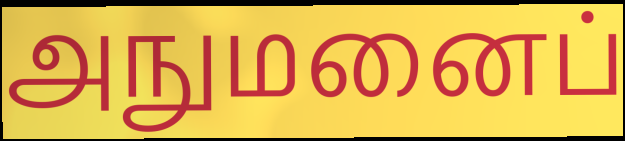
அநுமனைப்